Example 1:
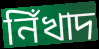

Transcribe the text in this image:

নিঁখাদ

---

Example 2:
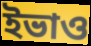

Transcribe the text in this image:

ইভাও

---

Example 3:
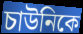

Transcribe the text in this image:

চাউনিকে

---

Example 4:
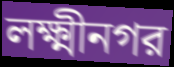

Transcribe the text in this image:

লক্ষ্মীনগর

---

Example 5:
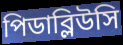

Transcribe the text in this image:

পিডাব্লিউসি